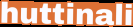
huttinali